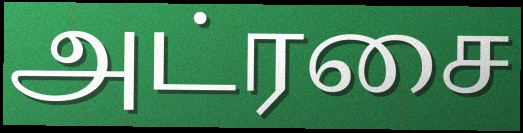
அட்ரசை